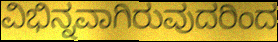
ವಿಭಿನ್ನವಾಗಿರುವುದರಿಂದ